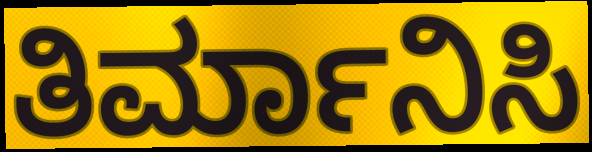
ತಿರ್ಮಾನಿಸಿ